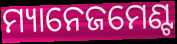
ମ୍ୟାନେଜମେଣ୍ଟ